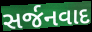
સર્જનવાદ